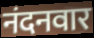
नंदनवार